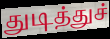
துடித்துச்